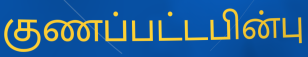
குணப்பட்டபின்பு